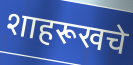
शाहरूखचे